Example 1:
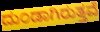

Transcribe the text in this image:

ದುಂಡಾಗಿರುತ್ತವೆ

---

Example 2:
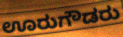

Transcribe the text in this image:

ಊರುಗೌಡರು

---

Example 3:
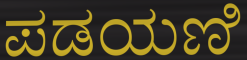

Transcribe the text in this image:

ಪಡಯಣಿ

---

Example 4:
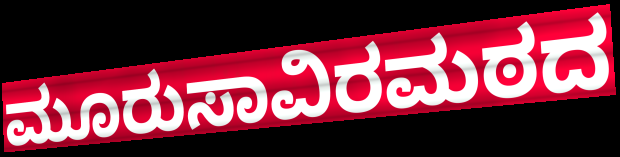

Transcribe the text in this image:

ಮೂರುಸಾವಿರಮಠದ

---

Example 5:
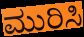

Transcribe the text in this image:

ಮುರಿಸಿ